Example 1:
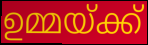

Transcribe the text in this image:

ഉമ്മയ്ക്ക്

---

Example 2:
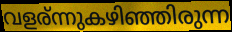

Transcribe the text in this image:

വളര്ന്നുകഴിഞ്ഞിരുന്ന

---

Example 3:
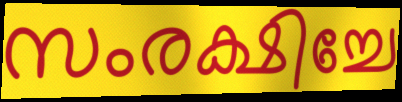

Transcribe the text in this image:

സംരക്ഷിച്ചേ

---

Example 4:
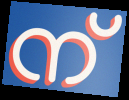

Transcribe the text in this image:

ന്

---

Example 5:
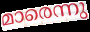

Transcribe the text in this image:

മാരെന്നു